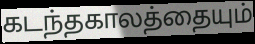
கடந்தகாலத்தையும்